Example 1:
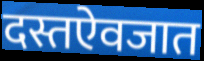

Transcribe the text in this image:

दस्तऐवजात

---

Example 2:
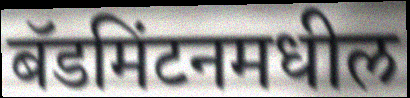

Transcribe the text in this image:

बॅडमिंटनमधील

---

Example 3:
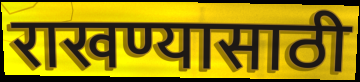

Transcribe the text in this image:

राखण्यासाठी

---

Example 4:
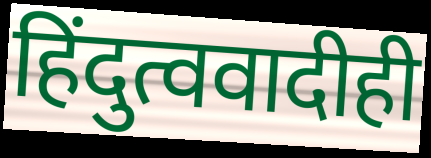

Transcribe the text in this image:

हिंदुत्ववादीही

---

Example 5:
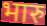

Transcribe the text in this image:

भारु